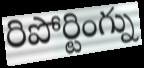
రిపోర్టింగ్ను